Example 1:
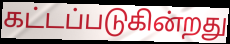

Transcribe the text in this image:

கட்டப்படுகின்றது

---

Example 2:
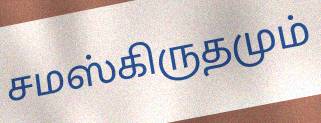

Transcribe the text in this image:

சமஸ்கிருதமும்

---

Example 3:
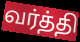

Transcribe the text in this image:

வர்த்தி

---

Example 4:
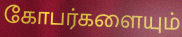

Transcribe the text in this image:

கோபர்களையும்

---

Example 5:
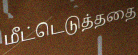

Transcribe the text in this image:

மீட்டெடுத்ததை